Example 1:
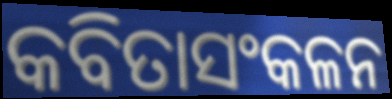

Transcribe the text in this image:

କବିତାସଂକଳନ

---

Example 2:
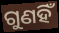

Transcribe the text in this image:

ଗୁଣହିଁ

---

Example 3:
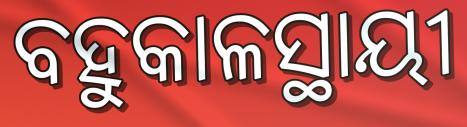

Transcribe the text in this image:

ବହୁକାଳସ୍ଥାୟୀ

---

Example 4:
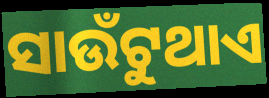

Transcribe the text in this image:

ସାଉଁଟୁଥାଏ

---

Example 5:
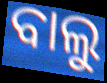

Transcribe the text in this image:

ବାଲୁ